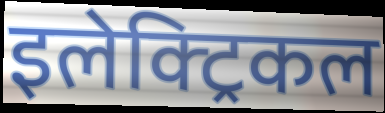
इलेक्ट्रिकल